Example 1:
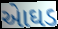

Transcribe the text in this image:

એાઘડ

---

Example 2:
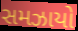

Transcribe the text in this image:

સમઝાયો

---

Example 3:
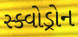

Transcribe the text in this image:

સ્ક્વોડ્રોન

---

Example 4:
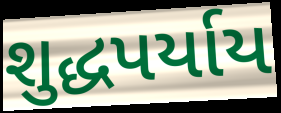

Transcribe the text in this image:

શુદ્ધપર્યાય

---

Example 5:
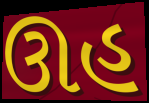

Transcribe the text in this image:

ઊહ